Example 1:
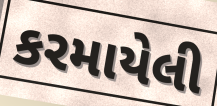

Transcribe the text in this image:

કરમાયેલી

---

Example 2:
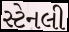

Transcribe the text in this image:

સ્ટેનલી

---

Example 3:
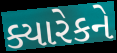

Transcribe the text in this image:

ક્યારેકને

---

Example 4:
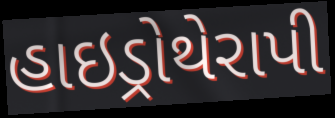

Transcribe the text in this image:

હાઇડ્રોથેરાપી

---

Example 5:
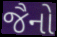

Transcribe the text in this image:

જૈનો